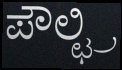
ಪೌಲ್ಟ್ರಿ